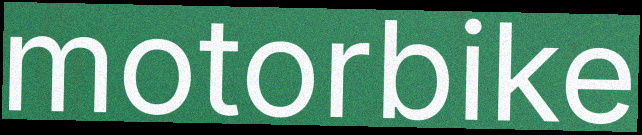
motorbike